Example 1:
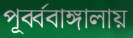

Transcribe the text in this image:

পূর্ব্ববাঙ্গালায়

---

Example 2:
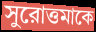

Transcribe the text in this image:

সুরোত্তমাকে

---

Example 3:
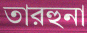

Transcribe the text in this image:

তারহুনা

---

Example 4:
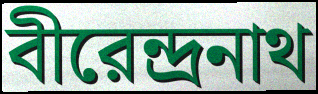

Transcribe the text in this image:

বীরেন্দ্রনাথ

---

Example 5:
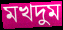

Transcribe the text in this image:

মখদুম